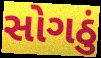
સોગઠું